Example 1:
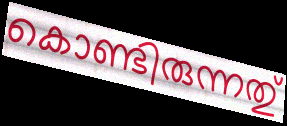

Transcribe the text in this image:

കൊണ്ടിരുന്നതു്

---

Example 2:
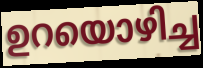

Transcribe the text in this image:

ഉറയൊഴിച്ച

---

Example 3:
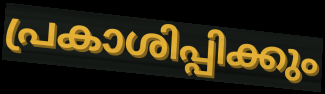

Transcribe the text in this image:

പ്രകാശിപ്പിക്കും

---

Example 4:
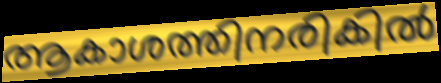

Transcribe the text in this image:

ആകാശത്തിനരികിൽ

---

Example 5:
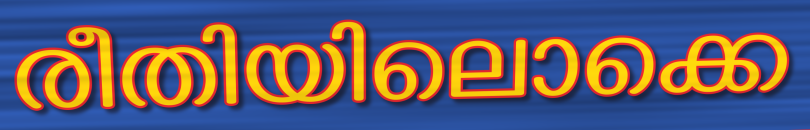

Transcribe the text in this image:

രീതിയിലൊക്കെ